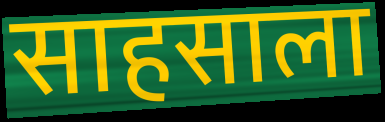
साहसाला